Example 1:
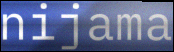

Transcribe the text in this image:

nijama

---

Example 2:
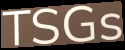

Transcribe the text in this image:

TSGs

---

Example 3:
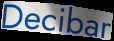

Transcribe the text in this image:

Decibar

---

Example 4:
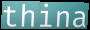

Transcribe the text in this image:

thina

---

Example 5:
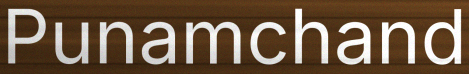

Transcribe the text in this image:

Punamchand